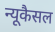
न्यूकैसल